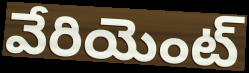
వేరియెంట్